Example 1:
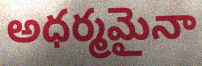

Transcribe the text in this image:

అధర్మమైనా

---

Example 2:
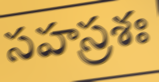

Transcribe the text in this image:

సహస్రశః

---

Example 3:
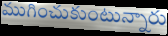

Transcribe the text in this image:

ముగించుకుంటున్నారు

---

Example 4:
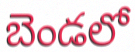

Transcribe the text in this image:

బెండలో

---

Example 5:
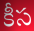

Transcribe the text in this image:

కీస